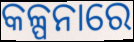
କଳ୍ପନାରେ